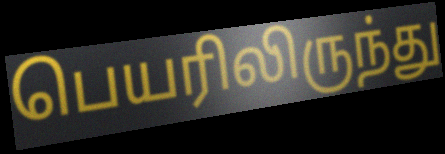
பெயரிலிருந்து